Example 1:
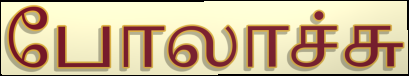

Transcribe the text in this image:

போலாச்சு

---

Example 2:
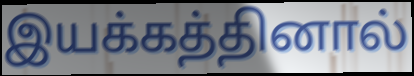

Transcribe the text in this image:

இயக்கத்தினால்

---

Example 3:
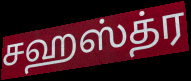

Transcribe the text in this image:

சஹஸ்த்ர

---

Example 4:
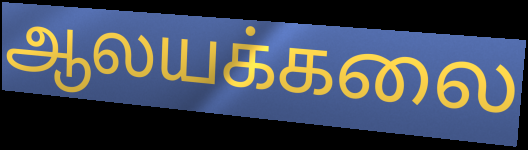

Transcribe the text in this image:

ஆலயக்கலை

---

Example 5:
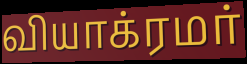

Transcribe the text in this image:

வியாக்ரமர்